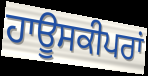
ਹਾਊਸਕੀਪਰਾਂ